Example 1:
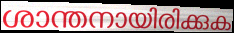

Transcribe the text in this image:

ശാന്തനായിരിക്കുക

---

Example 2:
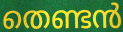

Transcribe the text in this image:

തെണ്ടൻ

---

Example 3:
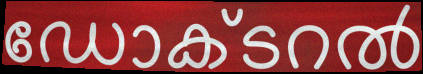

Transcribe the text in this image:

ഡോക്ടറൽ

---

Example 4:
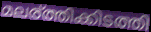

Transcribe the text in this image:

മലര്ത്തിക്കിടത്തി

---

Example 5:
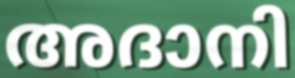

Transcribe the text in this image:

അദാനി